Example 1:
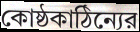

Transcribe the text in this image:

কোষ্ঠকাঠিন্যের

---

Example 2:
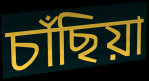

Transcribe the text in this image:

চাঁছিয়া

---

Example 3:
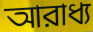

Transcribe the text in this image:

আরাধ্য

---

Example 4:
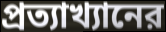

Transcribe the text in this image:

প্রত্যাখ্যানের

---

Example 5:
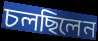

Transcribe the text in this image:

চলছিলেন